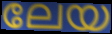
ലേയ